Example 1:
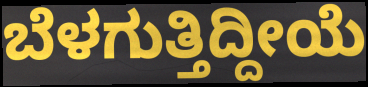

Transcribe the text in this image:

ಬೆಳಗುತ್ತಿದ್ದೀಯೆ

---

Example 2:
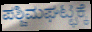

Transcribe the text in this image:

ಪಶ್ಚಿಮಘಟ್ಟಕ್ಕೆ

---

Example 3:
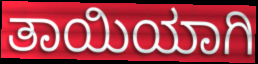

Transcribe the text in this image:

ತಾಯಿಯಾಗಿ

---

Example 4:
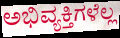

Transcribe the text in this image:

ಅಭಿವ್ಯಕ್ತಿಗಳೆಲ್ಲ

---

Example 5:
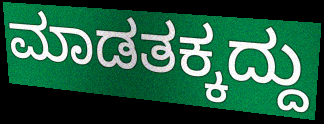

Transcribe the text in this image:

ಮಾಡತಕ್ಕದ್ದು